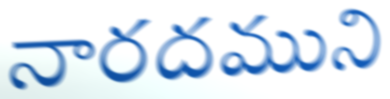
నారదముని